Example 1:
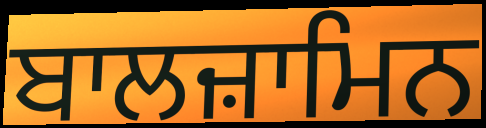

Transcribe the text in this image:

ਬਾਲਜ਼ਾਮਿਨ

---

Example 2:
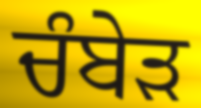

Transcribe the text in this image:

ਚੰਬੇੜ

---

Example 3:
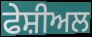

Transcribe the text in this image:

ਫੇਸ਼ੀਅਲ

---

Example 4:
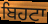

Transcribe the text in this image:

ਬਿਹਟਾ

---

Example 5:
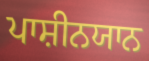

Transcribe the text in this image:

ਪਾਸ਼ੀਨਯਾਨ